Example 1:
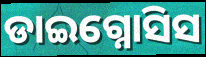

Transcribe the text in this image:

ଡାଇଗ୍ନୋସିସ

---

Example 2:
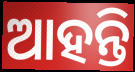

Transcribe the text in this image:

ଆହନ୍ତି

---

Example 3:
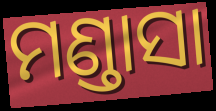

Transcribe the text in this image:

ମଣ୍ଡାସା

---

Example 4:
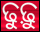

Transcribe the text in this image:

ଢୁଢ଼ୁ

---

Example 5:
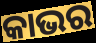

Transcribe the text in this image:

କାଭର